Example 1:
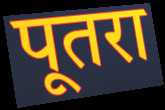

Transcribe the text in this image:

पूतरा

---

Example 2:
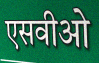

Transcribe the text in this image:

एसवीओ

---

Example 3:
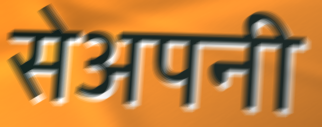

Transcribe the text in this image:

सेअपनी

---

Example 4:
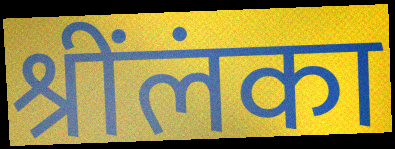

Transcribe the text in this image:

श्रींलंका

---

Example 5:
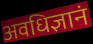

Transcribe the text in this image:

अवधिज्ञानं